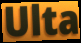
Ulta